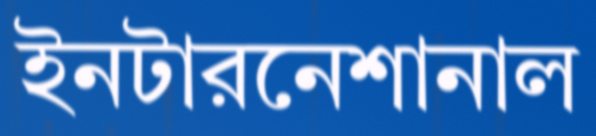
ইনটারনেশানাল